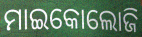
ମାଇକୋଲୋଜି